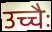
उच्चैः